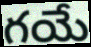
గయే